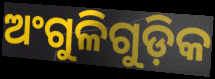
ଅଂଗୁଳିଗୁଡ଼ିକ